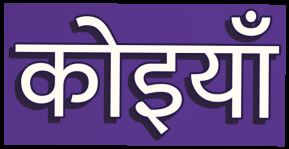
कोइयाँ